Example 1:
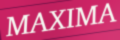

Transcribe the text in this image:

MAXIMA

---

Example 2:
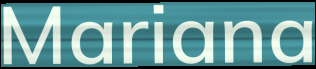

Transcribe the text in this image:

Mariana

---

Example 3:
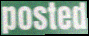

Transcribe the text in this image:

posted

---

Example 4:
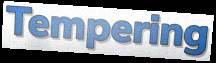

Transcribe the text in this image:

Tempering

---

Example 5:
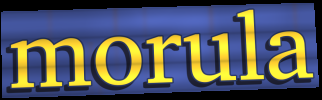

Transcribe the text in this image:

morula